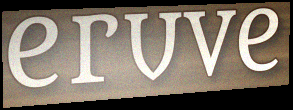
eruve